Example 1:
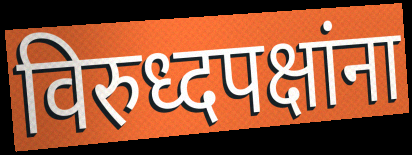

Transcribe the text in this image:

विरुध्दपक्षांना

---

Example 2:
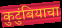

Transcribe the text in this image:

कुटुंबियाचा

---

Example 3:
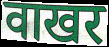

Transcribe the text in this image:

वाखर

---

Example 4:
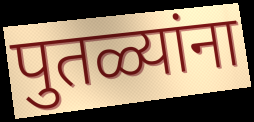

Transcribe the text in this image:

पुतळ्यांना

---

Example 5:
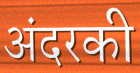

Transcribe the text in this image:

अंदरकी